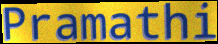
Pramathi